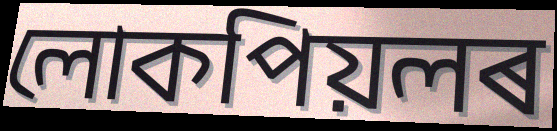
লোকপিয়লৰ